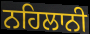
ਨਹਿਲਾਨੀ